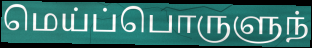
மெய்ப்பொருளுந்